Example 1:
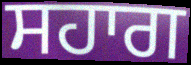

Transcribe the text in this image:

ਸਹਾਗ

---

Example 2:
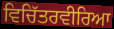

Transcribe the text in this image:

ਵਿਚਿੱਤਰਵੀਰਿਆ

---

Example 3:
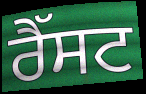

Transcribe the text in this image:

ਰੈੱਸਟ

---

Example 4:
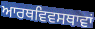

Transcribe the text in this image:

ਆਰਥਵਿਵਸਥਾਵਾਂ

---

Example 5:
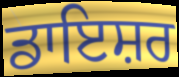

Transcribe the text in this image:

ਡਾਇਸ਼ਰ